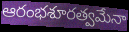
ఆరంభశూరత్వమేనా